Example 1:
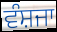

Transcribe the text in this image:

ਵੰਸ਼ਜਾ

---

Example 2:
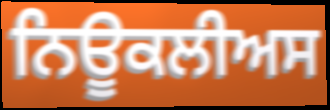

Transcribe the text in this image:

ਨਿਊਕਲੀਅਸ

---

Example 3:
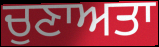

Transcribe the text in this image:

ਚੁਣਾਅਤਾ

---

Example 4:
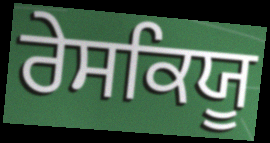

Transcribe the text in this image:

ਰੇਸਕਿਯੂ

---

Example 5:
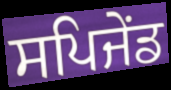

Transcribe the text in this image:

ਸਪਿਜੇਂਡ